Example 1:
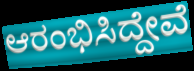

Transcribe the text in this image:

ಆರಂಭಿಸಿದ್ದೇವೆ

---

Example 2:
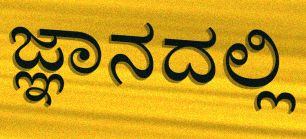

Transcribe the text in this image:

ಜ್ಞಾನದಲ್ಲಿ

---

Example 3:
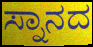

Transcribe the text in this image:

ಸ್ನಾನದ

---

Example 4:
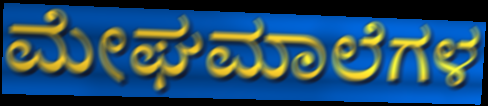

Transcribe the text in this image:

ಮೇಘಮಾಲೆಗಳ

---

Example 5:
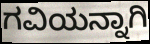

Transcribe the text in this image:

ಗವಿಯನ್ನಾಗಿ